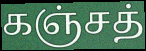
கஞ்சத்